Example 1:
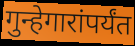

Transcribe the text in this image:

गुन्हेगारांपर्यंत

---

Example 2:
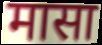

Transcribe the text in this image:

मासा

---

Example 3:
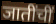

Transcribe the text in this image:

जातींचीं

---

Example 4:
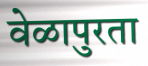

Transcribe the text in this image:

वेळापुरता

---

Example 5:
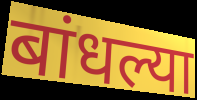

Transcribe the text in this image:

बांधल्या